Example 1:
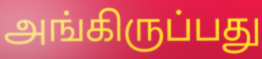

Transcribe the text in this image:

அங்கிருப்பது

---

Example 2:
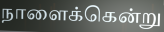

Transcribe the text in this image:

நாளைக்கென்று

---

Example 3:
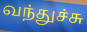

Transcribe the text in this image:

வந்துச்சு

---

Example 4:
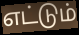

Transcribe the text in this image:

எட்டும்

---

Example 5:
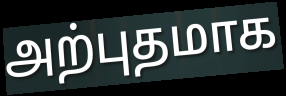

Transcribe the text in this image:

அற்புதமாக